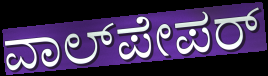
ವಾಲ್‌ಪೇಪರ್